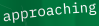
approaching